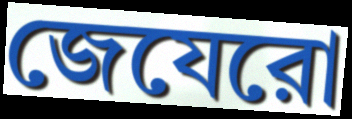
জেযেরো